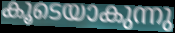
കൂടെയാകുന്നു